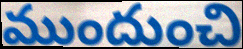
ముందుంచి